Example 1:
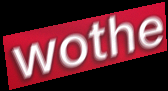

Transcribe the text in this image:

wothe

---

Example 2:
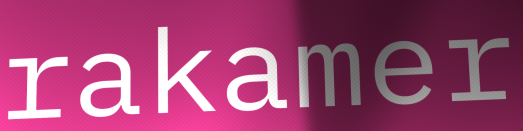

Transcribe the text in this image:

rakamer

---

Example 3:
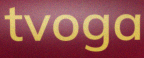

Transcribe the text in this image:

tvoga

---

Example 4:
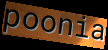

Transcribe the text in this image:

poonia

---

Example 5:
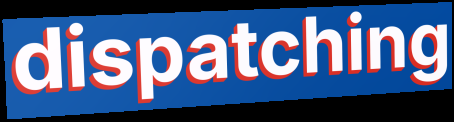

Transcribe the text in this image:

dispatching